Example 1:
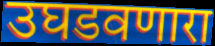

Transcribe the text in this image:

उघडवणारा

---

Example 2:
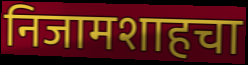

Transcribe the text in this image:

निजामशाहचा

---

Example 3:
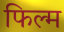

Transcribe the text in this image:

फिल्म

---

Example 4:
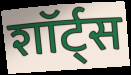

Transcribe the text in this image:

शॉर्ट्स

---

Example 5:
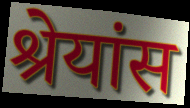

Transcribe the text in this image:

श्रेयांस